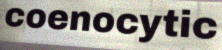
coenocytic